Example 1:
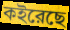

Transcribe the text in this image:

কইরেছে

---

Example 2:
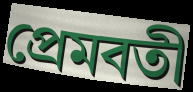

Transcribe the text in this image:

প্রেমবতী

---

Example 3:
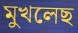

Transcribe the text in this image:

মুখলেছ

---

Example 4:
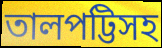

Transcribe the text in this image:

তালপট্টিসহ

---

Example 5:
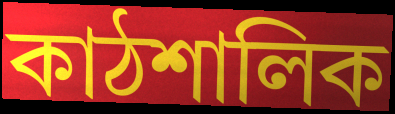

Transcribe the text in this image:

কাঠশালিক